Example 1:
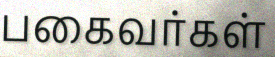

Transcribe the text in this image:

பகைவர்கள்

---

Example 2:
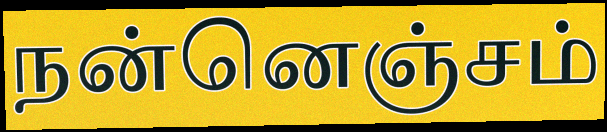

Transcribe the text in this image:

நன்னெஞ்சம்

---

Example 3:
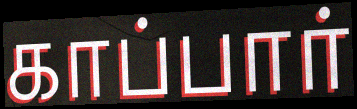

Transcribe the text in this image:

காப்பார்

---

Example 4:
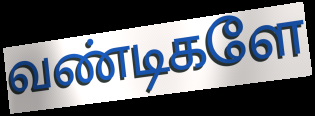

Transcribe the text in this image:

வண்டிகளே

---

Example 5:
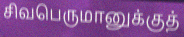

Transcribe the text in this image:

சிவபெருமானுக்குத்